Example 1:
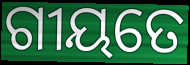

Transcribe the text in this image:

ଗୀୟତେ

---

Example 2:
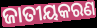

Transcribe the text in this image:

ଜାତୀୟକରଣ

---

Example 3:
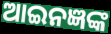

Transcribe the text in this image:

ଆଇନଜ୍ଞଙ୍କ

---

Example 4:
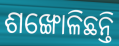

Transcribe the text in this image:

ଶଙ୍ଖୋଳିଛନ୍ତି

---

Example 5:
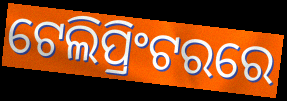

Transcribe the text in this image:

ଟେଲିପ୍ରିଂଟରରେ